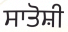
ਸਾਤੋਸ਼ੀ